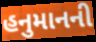
હનુમાનની